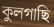
কুলগাছি